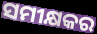
ସମୀକ୍ଷକର